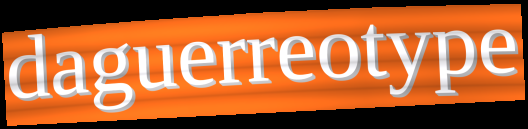
daguerreotype